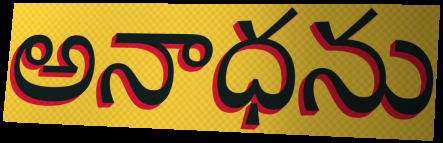
అనాధను